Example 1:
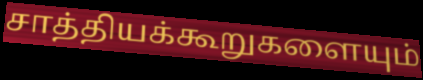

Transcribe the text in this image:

சாத்தியக்கூறுகளையும்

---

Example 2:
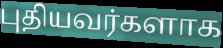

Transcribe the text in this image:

புதியவர்களாக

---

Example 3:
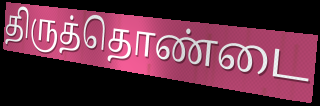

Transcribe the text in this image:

திருத்தொண்டை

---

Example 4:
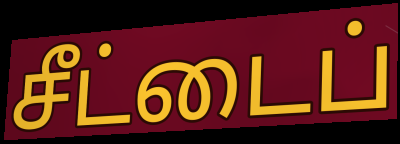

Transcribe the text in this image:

சீட்டைப்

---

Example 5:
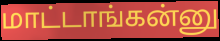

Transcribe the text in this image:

மாட்டாங்கன்னு